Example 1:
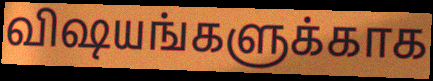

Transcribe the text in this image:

விஷயங்களுக்காக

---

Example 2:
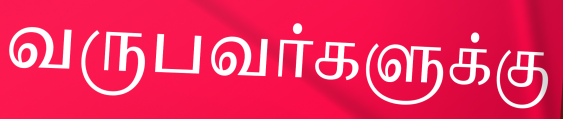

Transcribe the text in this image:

வருபவர்களுக்கு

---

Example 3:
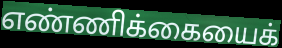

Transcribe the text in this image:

எண்ணிக்கையைக்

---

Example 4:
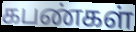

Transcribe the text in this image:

கபண்கள்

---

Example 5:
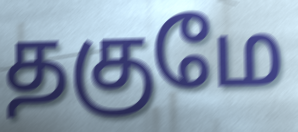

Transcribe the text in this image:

தகுமே